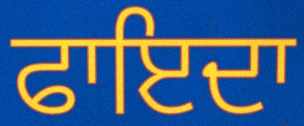
ਫਾਇਦਾ